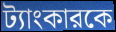
ট্যাংকারকে